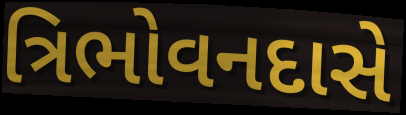
ત્રિભોવનદાસે